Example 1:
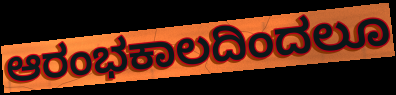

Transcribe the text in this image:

ಆರಂಭಕಾಲದಿಂದಲೂ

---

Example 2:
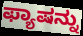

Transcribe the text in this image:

ಫ್ಯಾಷನ್ನು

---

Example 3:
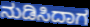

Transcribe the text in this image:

ನುಡಿಸಿದಾಗ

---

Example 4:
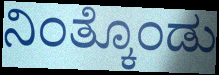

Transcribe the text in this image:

ನಿಂತ್ಕೊಂಡು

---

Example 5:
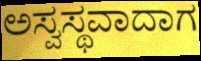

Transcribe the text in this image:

ಅಸ್ವಸ್ಥವಾದಾಗ